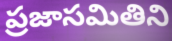
ప్రజాసమితిని